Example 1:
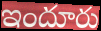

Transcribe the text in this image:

ఇందూరు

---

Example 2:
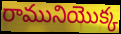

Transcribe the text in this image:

రామునియొక్క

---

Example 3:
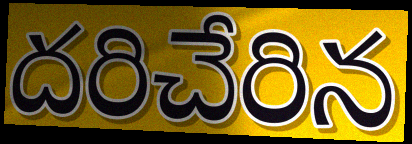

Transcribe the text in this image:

దరిచేరిన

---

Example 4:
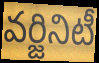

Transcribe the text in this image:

వర్జినిటీ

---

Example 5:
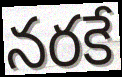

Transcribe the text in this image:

నరకే